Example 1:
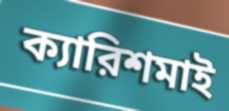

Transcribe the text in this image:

ক্যারিশমাই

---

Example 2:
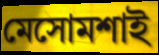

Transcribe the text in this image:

মেসোমশাই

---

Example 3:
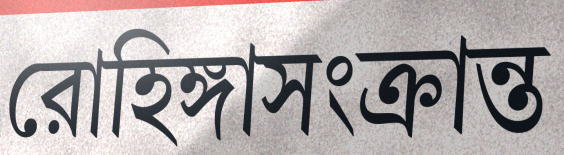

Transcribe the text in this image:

রোহিঙ্গাসংক্রান্ত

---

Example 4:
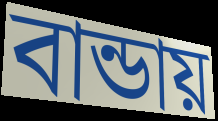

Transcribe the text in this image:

বান্ডায়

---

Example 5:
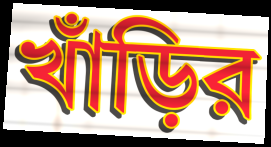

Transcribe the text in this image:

খাঁড়ির